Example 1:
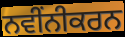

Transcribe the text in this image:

ਨਵੀਂਨੀਕਰਨ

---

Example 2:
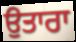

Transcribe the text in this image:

ਉਤਾਰਾ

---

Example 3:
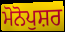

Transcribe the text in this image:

ਮੋਨੋਪੁਸ਼ਰ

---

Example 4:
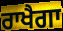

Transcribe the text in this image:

ਰਾਖੈਗਾ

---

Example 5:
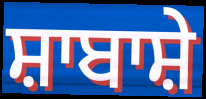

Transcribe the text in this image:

ਸ਼ਾਬਾਸ਼ੇ